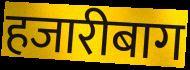
हजारीबाग